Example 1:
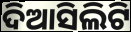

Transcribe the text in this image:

ଦିଆସିଲିଟି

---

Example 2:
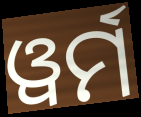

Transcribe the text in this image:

ୱର୍ମ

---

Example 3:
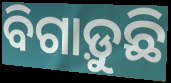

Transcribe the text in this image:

ବିଗାଡ଼ୁଛି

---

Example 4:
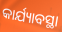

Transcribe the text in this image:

କାର୍ଯ୍ୟାବସ୍ଥା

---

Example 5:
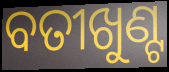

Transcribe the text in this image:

ବତୀଖୁଣ୍ଟ